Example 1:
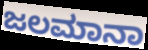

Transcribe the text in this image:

ಜಲಮಾನಾ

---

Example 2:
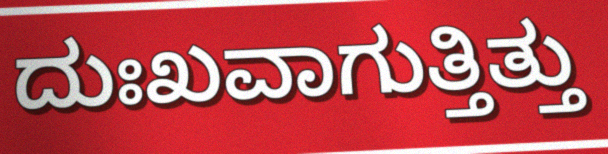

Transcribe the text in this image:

ದುಃಖವಾಗುತ್ತಿತ್ತು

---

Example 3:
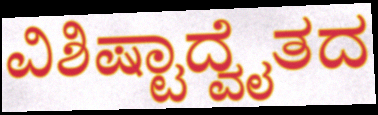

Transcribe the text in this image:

ವಿಶಿಷ್ಟಾದ್ವೈತದ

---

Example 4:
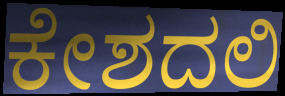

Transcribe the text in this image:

ಕೇಶದಲಿ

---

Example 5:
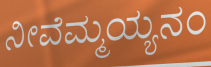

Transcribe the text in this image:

ನೀವೆಮ್ಮಯ್ಯನಂ